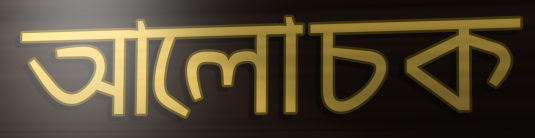
আলোচক